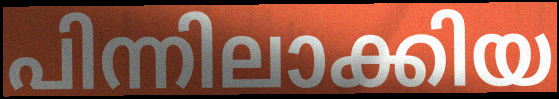
പിന്നിലാക്കിയ